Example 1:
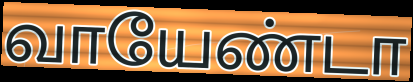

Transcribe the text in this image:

வாயேண்டா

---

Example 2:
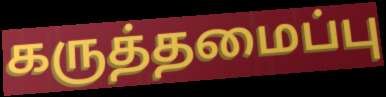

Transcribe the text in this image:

கருத்தமைப்பு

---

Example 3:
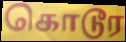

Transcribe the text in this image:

கொடூர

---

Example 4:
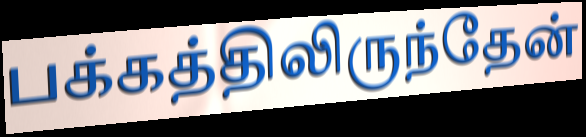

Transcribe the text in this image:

பக்கத்திலிருந்தேன்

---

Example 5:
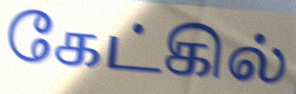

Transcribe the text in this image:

கேட்கில்